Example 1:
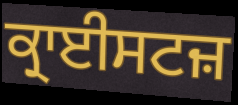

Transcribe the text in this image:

ਕ੍ਰਾਈਸਟਜ਼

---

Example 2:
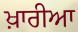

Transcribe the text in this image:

ਖ਼ਾਰੀਆ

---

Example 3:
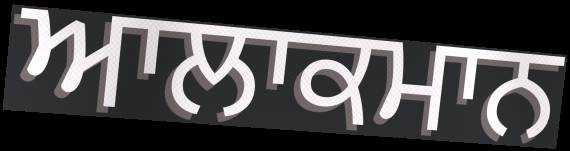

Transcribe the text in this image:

ਆਲਾਕਮਾਨ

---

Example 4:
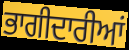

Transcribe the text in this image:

ਭਾਗੀਦਾਰੀਆਂ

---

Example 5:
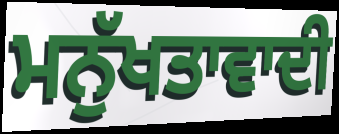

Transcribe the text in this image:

ਮਨੁੱਖਤਾਵਾਦੀ